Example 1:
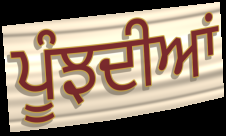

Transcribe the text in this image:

ਪੂੰਝਦੀਆਂ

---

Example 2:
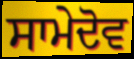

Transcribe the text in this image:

ਸਾਮੇਦੋਵ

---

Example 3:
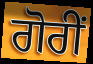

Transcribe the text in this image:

ਗੋਰੀਂ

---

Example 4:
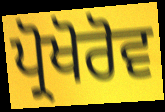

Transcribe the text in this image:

ਪ੍ਰੋਖੋਰੋਵ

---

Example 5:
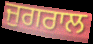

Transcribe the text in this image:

ਜੁਗਰਾਲ